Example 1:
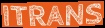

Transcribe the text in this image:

ITRANS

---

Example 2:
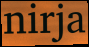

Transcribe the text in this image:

nirja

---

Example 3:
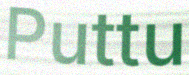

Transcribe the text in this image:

Puttu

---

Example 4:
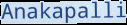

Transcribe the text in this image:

Anakapalli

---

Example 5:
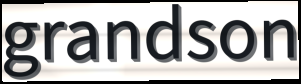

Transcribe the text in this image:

grandson